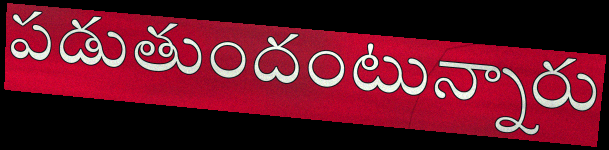
పడుతుందంటున్నారు